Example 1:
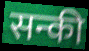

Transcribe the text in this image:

सन्की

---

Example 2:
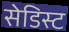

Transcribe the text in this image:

सेडिस्ट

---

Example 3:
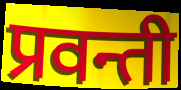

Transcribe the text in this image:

प्रवन्ती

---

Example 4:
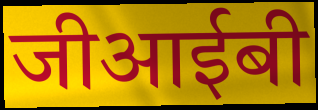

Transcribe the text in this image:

जीआईबी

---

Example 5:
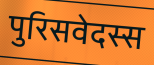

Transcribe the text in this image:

पुरिसवेदस्स